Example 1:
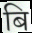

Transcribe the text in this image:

बि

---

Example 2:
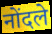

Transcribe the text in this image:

नोंदले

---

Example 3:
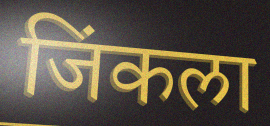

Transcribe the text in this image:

जिंकला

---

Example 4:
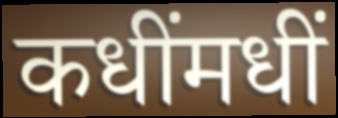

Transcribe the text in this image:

कधींमधीं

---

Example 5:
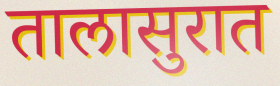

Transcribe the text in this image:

तालासुरात